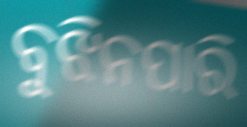
ବୁଝିନପାରି